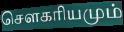
சௌகரியமும்